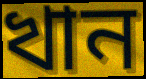
খান